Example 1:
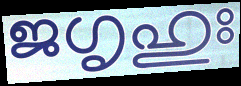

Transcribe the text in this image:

ജഗൃഹുഃ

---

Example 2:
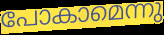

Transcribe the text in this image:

പോകാമെന്നു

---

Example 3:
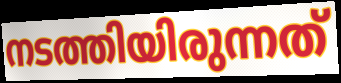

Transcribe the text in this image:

നടത്തിയിരുന്നത്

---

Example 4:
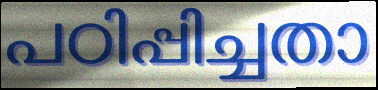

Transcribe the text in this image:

പഠിപ്പിച്ചതാ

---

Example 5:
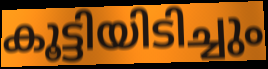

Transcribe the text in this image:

കൂട്ടിയിടിച്ചും